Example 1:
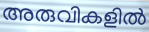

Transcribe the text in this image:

അരുവികളിൽ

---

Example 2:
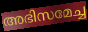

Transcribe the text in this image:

അഭിസമേച്ച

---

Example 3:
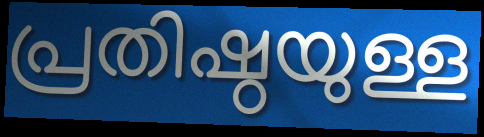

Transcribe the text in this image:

പ്രതിഷ്ഠയുള്ള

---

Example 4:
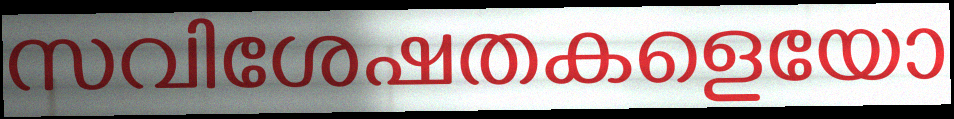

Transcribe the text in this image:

സവിശേഷതകളെയോ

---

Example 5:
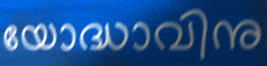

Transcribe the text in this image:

യോദ്ധാവിനു